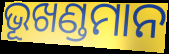
ଭୂଖଣ୍ଡମାନ